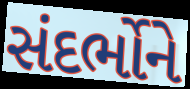
સંદર્ભોને